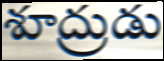
శూద్రుడు